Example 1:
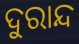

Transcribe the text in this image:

ଦୁରାନ୍ଦ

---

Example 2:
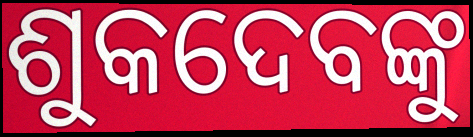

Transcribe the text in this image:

ଶୁକଦେବଙ୍କୁ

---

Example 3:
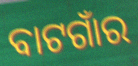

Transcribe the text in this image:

ବାଟଗାଁର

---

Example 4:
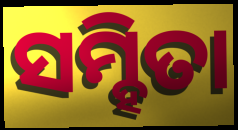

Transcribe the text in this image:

ସମ୍ହିତା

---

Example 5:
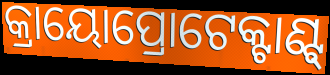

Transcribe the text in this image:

କ୍ରାୟୋପ୍ରୋଟେକ୍ଟାଣ୍ଟ୍